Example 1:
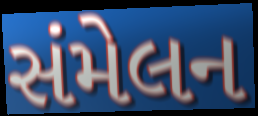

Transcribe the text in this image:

સંમેલન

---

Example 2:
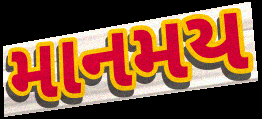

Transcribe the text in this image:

માનમય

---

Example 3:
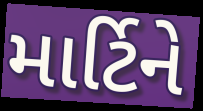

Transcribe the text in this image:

માર્ટિને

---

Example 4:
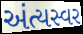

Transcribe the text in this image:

અંત્યસ્વર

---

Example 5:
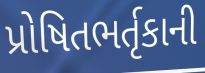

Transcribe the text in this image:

પ્રોષિતભર્તૃકાની